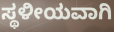
ಸ್ಥಳೀಯವಾಗಿ